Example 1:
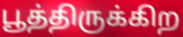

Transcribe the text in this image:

பூத்திருக்கிற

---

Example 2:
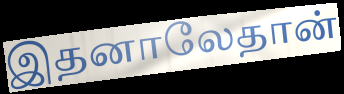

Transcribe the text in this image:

இதனாலேதான்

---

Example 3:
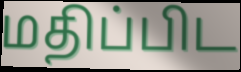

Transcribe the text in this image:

மதிப்பிட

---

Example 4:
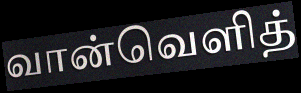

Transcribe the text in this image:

வான்வெளித்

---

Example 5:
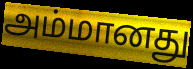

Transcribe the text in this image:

அம்மானது